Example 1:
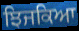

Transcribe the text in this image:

ਝਿਜਕਿਆ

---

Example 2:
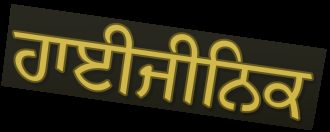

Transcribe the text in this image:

ਹਾਈਜੀਨਿਕ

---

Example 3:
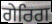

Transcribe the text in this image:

ਗੇਰਿਗ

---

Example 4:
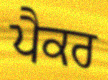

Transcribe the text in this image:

ਪੈਕਰ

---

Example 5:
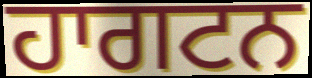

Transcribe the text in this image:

ਹਾਗਟਨ